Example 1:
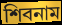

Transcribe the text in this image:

শিবনাম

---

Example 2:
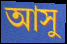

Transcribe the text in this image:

আসু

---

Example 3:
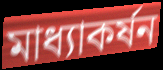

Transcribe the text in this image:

মাধ্যাকর্ষন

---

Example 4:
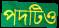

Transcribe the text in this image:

পদটিও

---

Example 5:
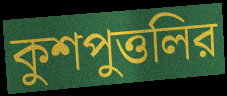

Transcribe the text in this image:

কুশপুত্তলির